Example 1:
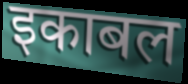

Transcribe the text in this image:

इकाबल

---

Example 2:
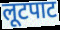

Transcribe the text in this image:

लूटपाट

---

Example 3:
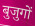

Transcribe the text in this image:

बुजुगों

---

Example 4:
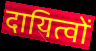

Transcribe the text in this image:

दायित्वों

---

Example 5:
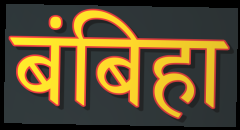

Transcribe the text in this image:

बंबिहा